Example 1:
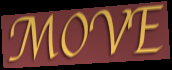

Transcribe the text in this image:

MOVE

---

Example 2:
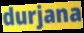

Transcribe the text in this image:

durjana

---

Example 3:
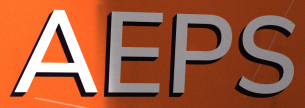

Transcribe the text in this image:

AEPS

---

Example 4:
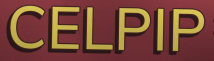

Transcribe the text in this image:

CELPIP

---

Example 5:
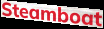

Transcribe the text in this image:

Steamboat